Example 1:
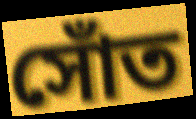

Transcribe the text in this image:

সোঁত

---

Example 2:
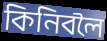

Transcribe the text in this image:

কিনিবলৈ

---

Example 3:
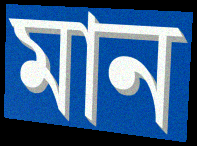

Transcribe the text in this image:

মান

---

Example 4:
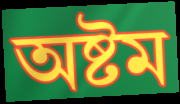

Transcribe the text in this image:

অষ্টম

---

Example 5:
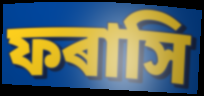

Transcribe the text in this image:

ফৰাসি